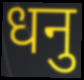
धनु